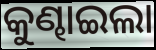
କୁଣ୍ଢାଇଲା